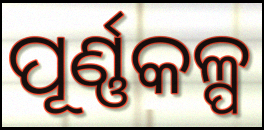
ପୂର୍ଣ୍ଣକଳ୍ପ